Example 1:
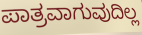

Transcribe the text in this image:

ಪಾತ್ರವಾಗುವುದಿಲ್ಲ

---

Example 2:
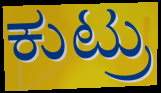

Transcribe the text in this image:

ಕುಟ್ರು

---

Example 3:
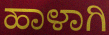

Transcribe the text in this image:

ಹಾಳಾಗಿ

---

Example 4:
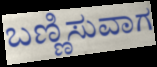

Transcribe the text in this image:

ಬಣ್ಣಿಸುವಾಗ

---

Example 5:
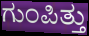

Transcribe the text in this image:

ಗುಂಪಿತ್ತು